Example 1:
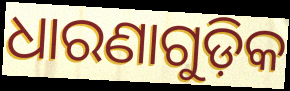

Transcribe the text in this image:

ଧାରଣାଗୁଡ଼ିକ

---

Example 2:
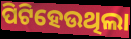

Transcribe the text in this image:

ପିଟିହେଉଥିଲା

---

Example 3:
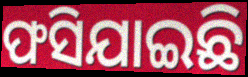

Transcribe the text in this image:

ଫସିଯାଇଛି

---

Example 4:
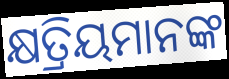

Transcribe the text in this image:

କ୍ଷତ୍ରିୟମାନଙ୍କ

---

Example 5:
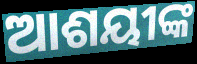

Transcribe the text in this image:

ଆଶୟୀଙ୍କ